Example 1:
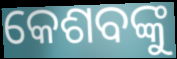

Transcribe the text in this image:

କେଶବଙ୍କୁ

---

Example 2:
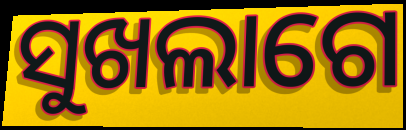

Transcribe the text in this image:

ସୁଖଲାଗେ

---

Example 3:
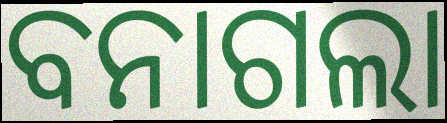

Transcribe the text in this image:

ବନାଗଲା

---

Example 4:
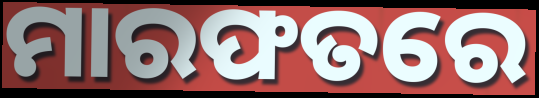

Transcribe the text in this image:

ମାରଫତରେ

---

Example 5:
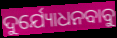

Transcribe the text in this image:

ଦୁର୍ଯ୍ୟୋଧନବାବୁ